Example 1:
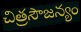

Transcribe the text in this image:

చిత్రసౌజన్యం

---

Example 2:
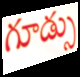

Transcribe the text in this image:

గూడ్సు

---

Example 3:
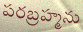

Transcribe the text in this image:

పరబ్రహ్మను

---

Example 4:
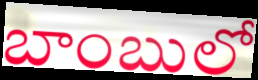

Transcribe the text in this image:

బాంబులో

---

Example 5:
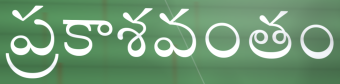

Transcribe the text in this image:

ప్రకాశవంతం